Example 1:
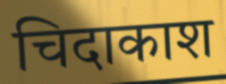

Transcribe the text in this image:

चिदाकाश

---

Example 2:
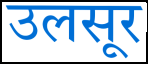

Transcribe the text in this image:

उलसूर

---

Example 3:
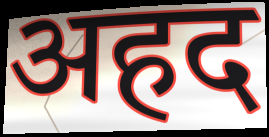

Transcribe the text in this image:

अहद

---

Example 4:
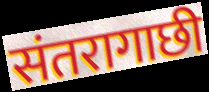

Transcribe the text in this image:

संतरागाछी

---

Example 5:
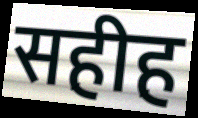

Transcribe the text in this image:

सह़ीह़